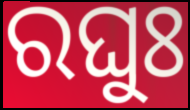
ରଘୁଃ